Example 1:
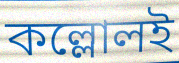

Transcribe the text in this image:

কল্লোলই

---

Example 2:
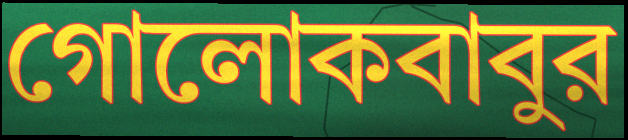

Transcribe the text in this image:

গোলোকবাবুর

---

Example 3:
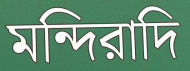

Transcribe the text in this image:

মন্দিরাদি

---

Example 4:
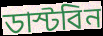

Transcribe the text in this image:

ডাস্টবিন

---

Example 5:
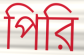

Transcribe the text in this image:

পিরি